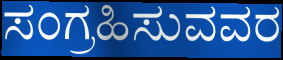
ಸಂಗ್ರಹಿಸುವವರ